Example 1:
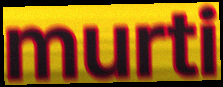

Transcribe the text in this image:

murti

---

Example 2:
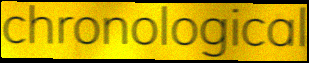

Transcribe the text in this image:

chronological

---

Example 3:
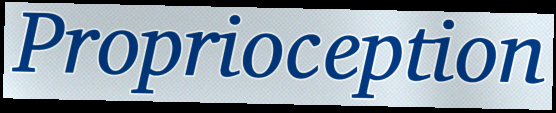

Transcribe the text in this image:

Proprioception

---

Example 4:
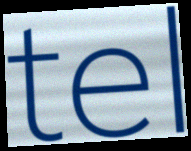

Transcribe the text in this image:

tel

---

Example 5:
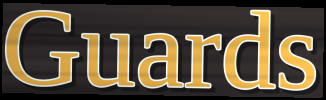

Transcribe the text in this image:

Guards